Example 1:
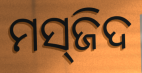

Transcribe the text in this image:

ମସ୍‌ଜିଦ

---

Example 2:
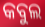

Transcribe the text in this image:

କବୁଲ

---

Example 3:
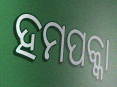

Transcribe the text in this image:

ହମପକ୍କା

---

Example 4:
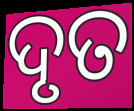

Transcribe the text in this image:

ଦୃତ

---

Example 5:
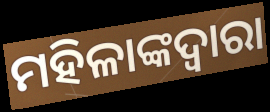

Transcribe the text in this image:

ମହିଳାଙ୍କଦ୍ୱାରା